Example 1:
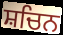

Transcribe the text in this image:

ਸ਼ਚਿਨ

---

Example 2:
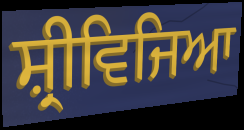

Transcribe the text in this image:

ਸ਼੍ਰੀਵਿਜਿਆ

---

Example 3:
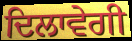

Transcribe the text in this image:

ਦਿਲਾਵੇਗੀ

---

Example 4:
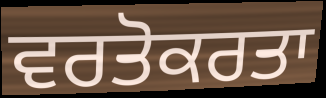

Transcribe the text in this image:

ਵਰਤੋਕਰਤਾ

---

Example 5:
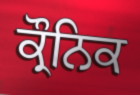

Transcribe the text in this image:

ਕ੍ਰੌਨਿਕ